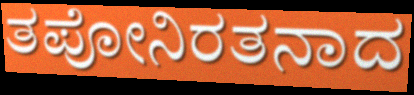
ತಪೋನಿರತನಾದ